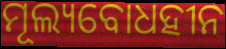
ମୂଲ୍ୟବୋଧହୀନ